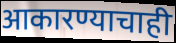
आकारण्याचाही